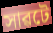
সাৱটে